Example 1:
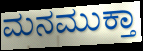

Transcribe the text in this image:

ಮನಮುಕ್ತಾ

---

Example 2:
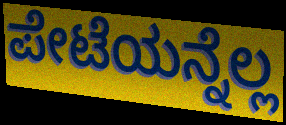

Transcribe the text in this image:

ಪೇಟೆಯನ್ನೆಲ್ಲ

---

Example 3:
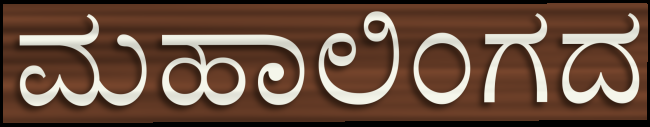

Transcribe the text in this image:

ಮಹಾಲಿಂಗದ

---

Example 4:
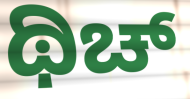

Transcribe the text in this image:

ಥಿಚ್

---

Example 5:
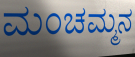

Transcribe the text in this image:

ಮಂಚಮ್ಮನ